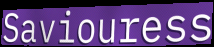
Saviouress